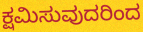
ಕ್ಷಮಿಸುವುದರಿಂದ